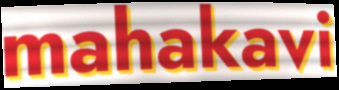
mahakavi